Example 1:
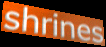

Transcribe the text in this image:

shrines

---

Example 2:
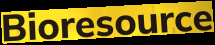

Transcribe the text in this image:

Bioresource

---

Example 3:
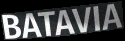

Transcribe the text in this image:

BATAVIA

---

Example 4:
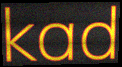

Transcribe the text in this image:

kad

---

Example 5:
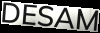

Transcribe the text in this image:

DESAM